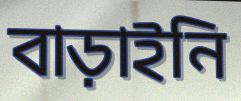
বাড়াইনি